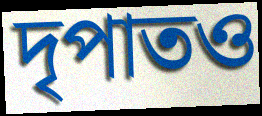
দৃপাতও